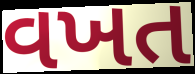
વખત